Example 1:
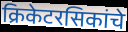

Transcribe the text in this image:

क्रिकेटरसिकांचे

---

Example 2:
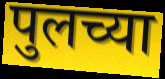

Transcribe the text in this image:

पुलच्या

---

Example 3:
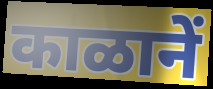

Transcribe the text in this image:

काळानें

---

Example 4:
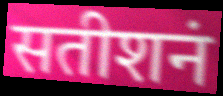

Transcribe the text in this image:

सतीशनं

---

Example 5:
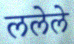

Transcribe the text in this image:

ललेले